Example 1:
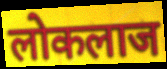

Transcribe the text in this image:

लोकलाज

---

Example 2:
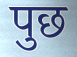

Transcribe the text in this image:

पुछ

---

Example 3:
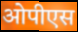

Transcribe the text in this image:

ओपीएस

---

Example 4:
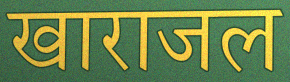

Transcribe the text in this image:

खाराजल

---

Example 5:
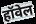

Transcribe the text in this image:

हॉवेल